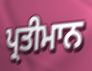
ਪ੍ਰਤੀਮਾਨ